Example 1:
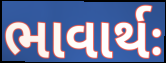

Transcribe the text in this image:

ભાવાર્થઃ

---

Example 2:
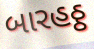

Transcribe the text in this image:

બારહઠ્ઠ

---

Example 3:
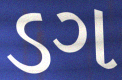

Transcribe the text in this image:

ડગ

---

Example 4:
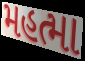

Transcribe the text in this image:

મહત્મા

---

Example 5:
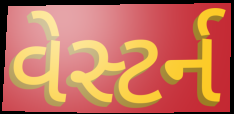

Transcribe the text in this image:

વેસ્ટર્ન